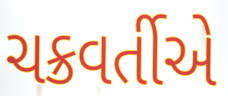
ચક્રવર્તીએ